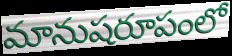
మానుషరూపంలో